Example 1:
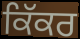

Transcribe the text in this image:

ਕਿੱਕਰ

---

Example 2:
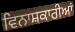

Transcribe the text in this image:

ਵਿਨਾਸ਼ਕਾਰੀਆਂ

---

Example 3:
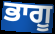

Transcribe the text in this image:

ਭਾਗੂ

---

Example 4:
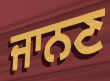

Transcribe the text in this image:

ਜਾਨਣ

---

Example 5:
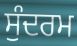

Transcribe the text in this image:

ਸੁੰਦਰਮ